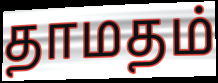
தாமதம்